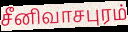
சீனிவாசபுரம்